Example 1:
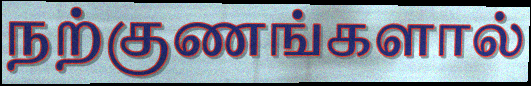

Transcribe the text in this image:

நற்குணங்களால்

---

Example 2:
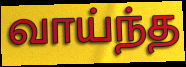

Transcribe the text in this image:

வாய்ந்த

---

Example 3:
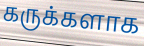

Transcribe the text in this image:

கருக்களாக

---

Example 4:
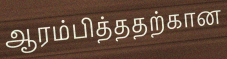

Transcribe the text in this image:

ஆரம்பித்ததற்கான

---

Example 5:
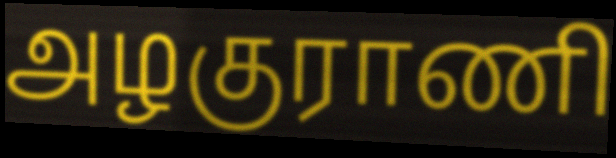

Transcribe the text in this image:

அழகுராணி